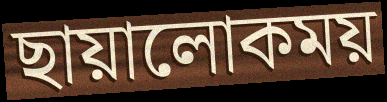
ছায়ালোকময়